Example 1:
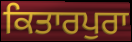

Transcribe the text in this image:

ਕਿਤਾਰਪੁਰਾ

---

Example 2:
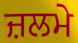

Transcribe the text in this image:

ਜ਼ਲਮੇ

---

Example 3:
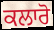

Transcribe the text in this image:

ਕਲਾਰੋ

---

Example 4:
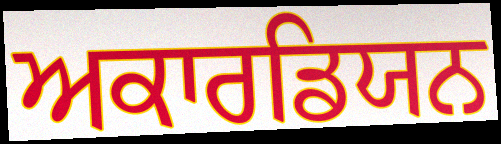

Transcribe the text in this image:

ਅਕਾਰਡਿਯਨ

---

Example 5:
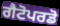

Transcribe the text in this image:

ਗੈਟੋਪਰਡੋ